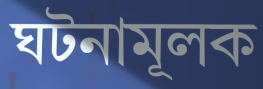
ঘটনামূলক